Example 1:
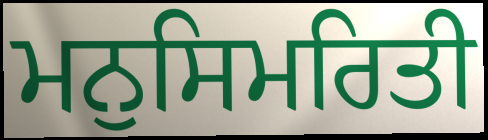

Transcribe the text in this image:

ਮਨੁਸਿਮਰਿਤੀ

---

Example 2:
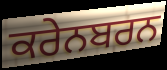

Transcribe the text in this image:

ਕਰੇਨਬਰਨ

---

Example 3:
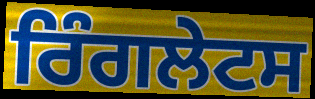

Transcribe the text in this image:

ਰਿੰਗਲੇਟਸ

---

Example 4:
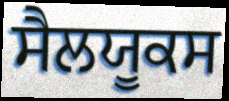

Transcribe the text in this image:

ਸੈਲਯੂਕਸ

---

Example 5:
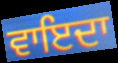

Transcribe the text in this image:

ਵਾਇਦਾ